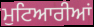
ਮੁਟਿਆਰੀਆਂ